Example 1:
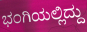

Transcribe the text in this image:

ಭಂಗಿಯಲ್ಲಿದ್ದು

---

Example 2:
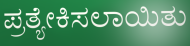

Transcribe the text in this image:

ಪ್ರತ್ಯೇಕಿಸಲಾಯಿತು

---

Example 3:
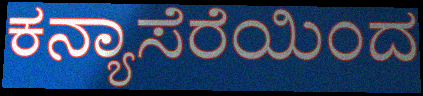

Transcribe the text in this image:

ಕನ್ಯಾಸೆರೆಯಿಂದ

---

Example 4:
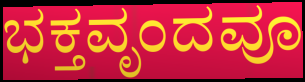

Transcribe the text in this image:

ಭಕ್ತವೃಂದವೂ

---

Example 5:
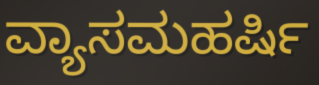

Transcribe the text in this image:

ವ್ಯಾಸಮಹರ್ಷಿ